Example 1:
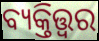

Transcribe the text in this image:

ବ୍ୟକ୍ତିତ୍ତ୍ଵର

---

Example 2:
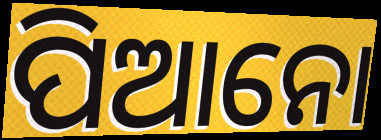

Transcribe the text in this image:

ପିଆନୋ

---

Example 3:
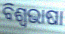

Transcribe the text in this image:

ବିଶ୍ୱଭାଷା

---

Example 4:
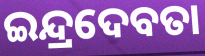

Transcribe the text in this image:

ଇନ୍ଦ୍ରଦେବତା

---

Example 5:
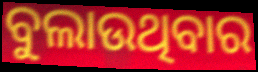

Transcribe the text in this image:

ବୁଲାଉଥିବାର